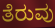
ತೆರುವು